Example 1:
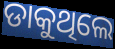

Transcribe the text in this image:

ଡାକୁଥିଲେ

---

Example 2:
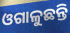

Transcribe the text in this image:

ଓଗାଳୁଛନ୍ତି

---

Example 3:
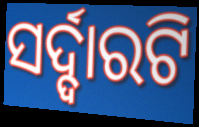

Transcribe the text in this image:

ସର୍ଦ୍ଦାରଟି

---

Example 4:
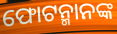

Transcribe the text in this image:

ଫୋଟନ୍ମାନଙ୍କ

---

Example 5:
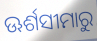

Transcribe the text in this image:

ଊର୍ଶସୀମାରୁ